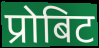
प्रोबिट